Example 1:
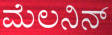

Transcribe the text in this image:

ಮೆಲನಿನ್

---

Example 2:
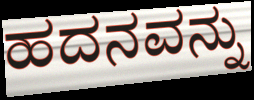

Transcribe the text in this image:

ಹದನವನ್ನು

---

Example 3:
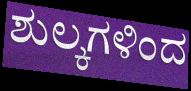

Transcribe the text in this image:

ಶುಲ್ಕಗಳಿಂದ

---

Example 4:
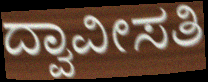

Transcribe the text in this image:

ದ್ವಾವೀಸತಿ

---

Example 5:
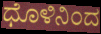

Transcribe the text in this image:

ಧೊಳಿನಿಂದ